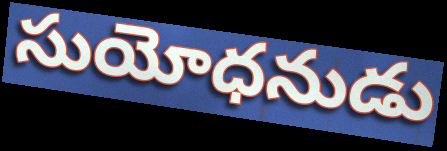
సుయోధనుడు